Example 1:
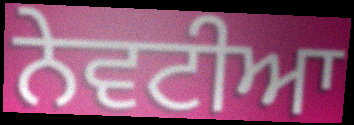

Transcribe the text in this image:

ਨੇਵਟੀਆ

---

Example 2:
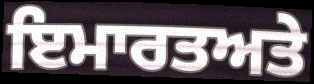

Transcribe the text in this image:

ਇਮਾਰਤਅਤੇ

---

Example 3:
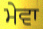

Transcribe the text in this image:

ਮੇਵਾ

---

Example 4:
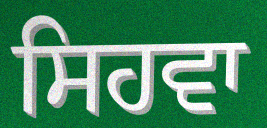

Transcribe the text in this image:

ਸਿਹਵਾ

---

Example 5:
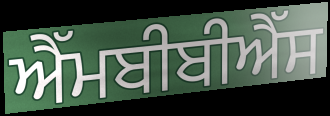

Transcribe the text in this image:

ਐੱਮਬੀਬੀਐੱਸ